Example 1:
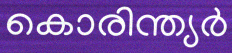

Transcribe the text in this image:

കൊരിന്ത്യർ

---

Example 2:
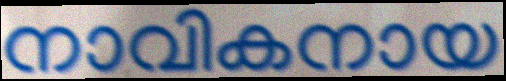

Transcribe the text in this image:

നാവികനായ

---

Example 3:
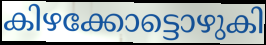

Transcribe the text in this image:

കിഴക്കോട്ടൊഴുകി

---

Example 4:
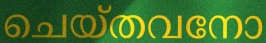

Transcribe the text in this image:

ചെയ്തവനോ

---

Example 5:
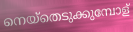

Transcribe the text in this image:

നെയ്തെടുക്കുമ്പോള്